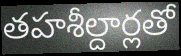
తహశీల్దార్లతో